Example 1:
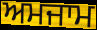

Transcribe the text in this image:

ਅਮਜਾਮ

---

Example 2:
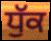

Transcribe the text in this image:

ਧੁੱਕ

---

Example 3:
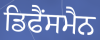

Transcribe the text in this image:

ਡਿਫੈਂਸਮੈਨ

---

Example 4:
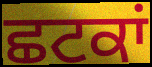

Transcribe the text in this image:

ਛਟਕਾਂ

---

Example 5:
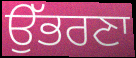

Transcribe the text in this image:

ਉੱਭਰਣਾ